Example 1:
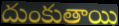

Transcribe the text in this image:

దుంకుతాయి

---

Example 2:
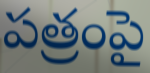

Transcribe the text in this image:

పత్రంపై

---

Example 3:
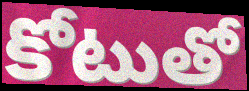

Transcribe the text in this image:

కోటుతో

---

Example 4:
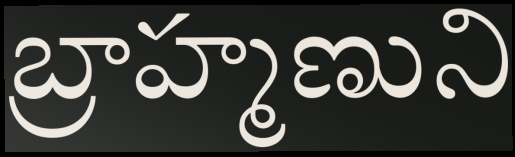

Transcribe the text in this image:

బ్రాహ్మణుని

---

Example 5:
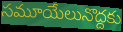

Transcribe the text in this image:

సమూయేలునొద్దకు